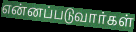
என்னப்படுவார்கள்